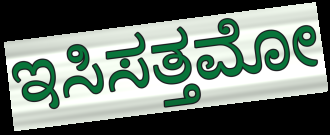
ಇಸಿಸತ್ತಮೋ